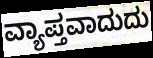
ವ್ಯಾಪ್ತವಾದುದು